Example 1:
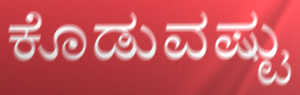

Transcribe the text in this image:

ಕೊಡುವಷ್ಟು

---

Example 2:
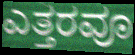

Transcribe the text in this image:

ಎತ್ತರವೂ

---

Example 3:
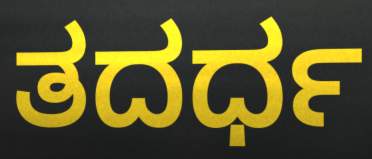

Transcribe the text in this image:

ತದರ್ಧ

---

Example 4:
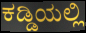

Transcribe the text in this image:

ಕಡ್ಡಿಯಲ್ಲಿ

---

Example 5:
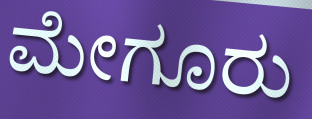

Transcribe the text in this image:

ಮೇಗೂರು